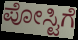
ಪೋಸ್ಟಿಗೆ